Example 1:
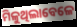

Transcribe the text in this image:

ମିଳୁଥିଲାବେଳେ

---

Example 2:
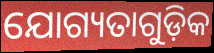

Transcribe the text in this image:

ଯୋଗ୍ୟତାଗୁଡ଼ିକ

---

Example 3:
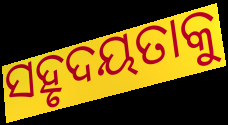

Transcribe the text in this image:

ସହୃଦୟତାକୁ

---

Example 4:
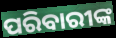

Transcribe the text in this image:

ପରିବାରୀଙ୍କ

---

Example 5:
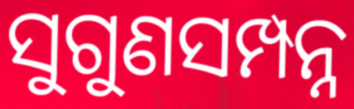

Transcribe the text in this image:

ସୁଗୁଣସମ୍ପନ୍ନ